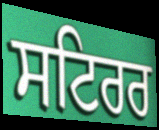
ਸਟਿਰਰ